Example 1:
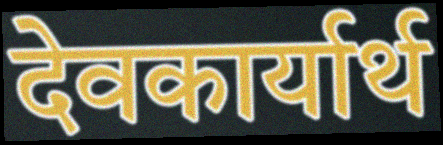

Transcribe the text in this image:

देवकार्यार्थ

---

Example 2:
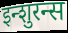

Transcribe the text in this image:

इन्शुरन्स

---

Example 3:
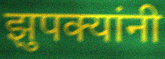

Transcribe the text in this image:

झुपक्यांनी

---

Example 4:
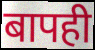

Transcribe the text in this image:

बापही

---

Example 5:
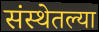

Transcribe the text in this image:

संस्थेतल्या